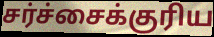
சர்ச்சைக்குரிய